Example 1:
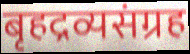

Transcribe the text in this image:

बृहद्रव्यसंग्रह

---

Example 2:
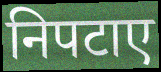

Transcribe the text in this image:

निपटाए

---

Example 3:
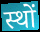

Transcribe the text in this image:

स्थों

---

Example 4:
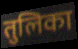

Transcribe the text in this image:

तुलिका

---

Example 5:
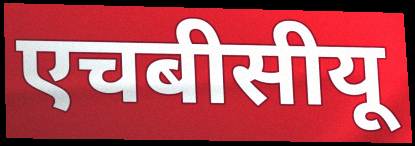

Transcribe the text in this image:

एचबीसीयू